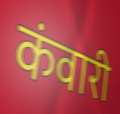
कंवारी